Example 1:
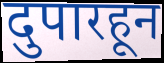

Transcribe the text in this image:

दुपारहून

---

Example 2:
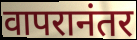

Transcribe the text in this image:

वापरानंतर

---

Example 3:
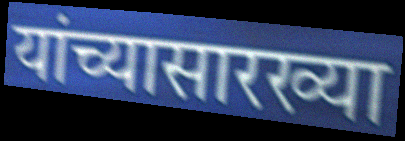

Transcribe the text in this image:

यांच्यासारख्या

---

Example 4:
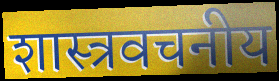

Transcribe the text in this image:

शास्त्रवचनीय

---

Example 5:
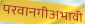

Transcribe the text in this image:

परवानगीअभावी